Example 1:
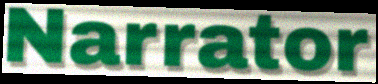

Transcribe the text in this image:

Narrator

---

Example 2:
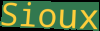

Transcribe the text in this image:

Sioux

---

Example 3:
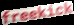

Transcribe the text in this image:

freekick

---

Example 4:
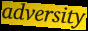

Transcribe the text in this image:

adversity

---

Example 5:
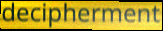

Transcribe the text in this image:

decipherment